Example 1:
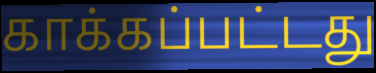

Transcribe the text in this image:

காக்கப்பட்டது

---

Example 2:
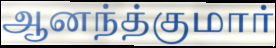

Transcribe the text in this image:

ஆனந்த்குமார்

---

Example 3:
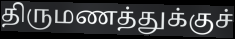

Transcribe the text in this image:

திருமணத்துக்குச்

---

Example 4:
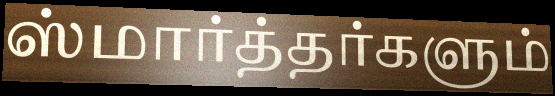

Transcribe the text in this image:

ஸ்மார்த்தர்களும்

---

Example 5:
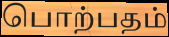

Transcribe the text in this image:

பொற்பதம்